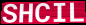
SHCIL